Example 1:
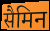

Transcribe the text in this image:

सैमिन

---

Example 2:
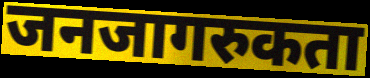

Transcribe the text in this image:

जनजागरुकता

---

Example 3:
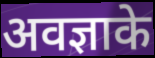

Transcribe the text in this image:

अवज्ञाके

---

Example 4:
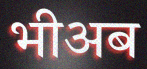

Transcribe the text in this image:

भीअब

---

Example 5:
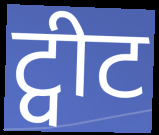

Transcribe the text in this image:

ट्वीट